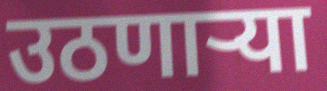
उठणाऱ्या